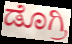
ಡೊಗ್ರಿ